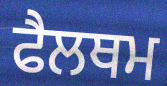
ਫੈਲਥਮ